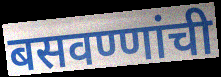
बसवण्णांची